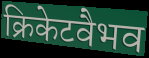
क्रिकेटवैभव